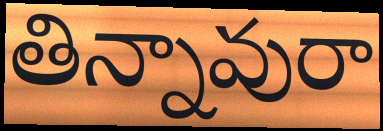
తిన్నావురా